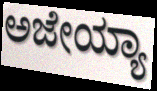
ಅಜೇಯ್ಯಾ